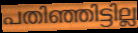
പതിഞ്ഞിട്ടില്ല